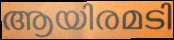
ആയിരമടി